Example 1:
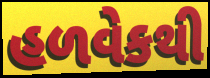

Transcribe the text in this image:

હળવેકથી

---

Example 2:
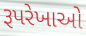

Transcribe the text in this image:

રૂપરેખાઓ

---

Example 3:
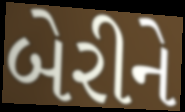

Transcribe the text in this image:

બેરીને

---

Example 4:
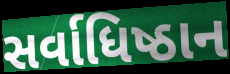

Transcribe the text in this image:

સર્વાધિષ્ઠાન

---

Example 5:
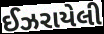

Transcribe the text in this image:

ઈઝરાયેલી